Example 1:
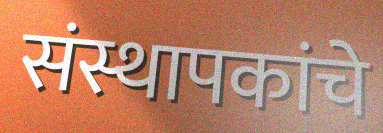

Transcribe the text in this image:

संस्थापकांचे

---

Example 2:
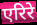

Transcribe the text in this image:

एरिरे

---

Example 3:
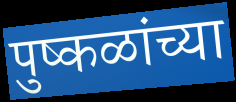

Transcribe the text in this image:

पुष्कळांच्या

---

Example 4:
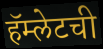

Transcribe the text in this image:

हॅम्लेटची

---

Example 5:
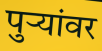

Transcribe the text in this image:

पुऱ्यांवर